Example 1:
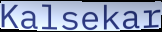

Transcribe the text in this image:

Kalsekar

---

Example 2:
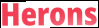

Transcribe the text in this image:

Herons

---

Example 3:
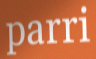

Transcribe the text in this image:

parri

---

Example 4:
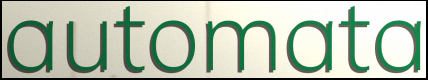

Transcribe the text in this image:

automata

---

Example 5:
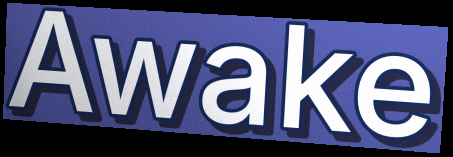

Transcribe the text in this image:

Awake